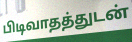
பிடிவாதத்துடன்